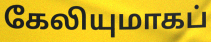
கேலியுமாகப்